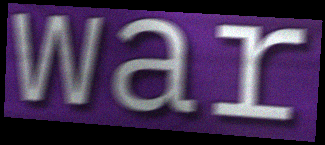
war